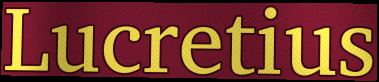
Lucretius